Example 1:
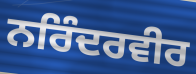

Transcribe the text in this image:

ਨਰਿੰਦਰਵੀਰ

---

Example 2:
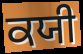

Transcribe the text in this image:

ਕਯੀ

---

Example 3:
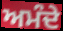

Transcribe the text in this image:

ਅਮੰਦੇ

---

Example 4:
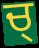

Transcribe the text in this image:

ਚ੍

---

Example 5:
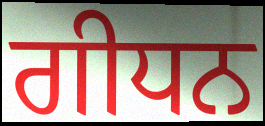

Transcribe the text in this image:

ਗੀਧਨ